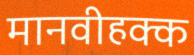
मानवीहक्क